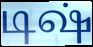
டிஷ்